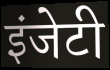
इंजेटी